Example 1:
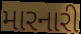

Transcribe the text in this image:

મારનારી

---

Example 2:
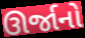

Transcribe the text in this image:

ઊર્જાનો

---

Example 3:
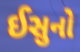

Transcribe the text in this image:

ઈસુનો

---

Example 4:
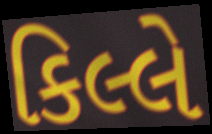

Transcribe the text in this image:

કિલ્લે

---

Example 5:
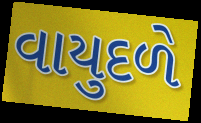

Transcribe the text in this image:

વાયુદળે